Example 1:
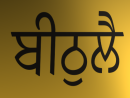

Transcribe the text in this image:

ਬੀਠੁਲੈ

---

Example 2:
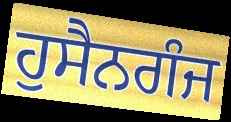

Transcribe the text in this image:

ਹੁਸੈਨਗੰਜ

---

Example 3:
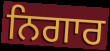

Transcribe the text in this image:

ਨਿਗਾਰ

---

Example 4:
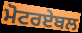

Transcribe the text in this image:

ਮੋਟਰਏਬਲ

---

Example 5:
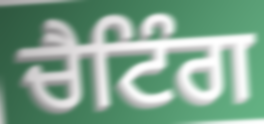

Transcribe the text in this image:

ਚੈਟਿੰਗ